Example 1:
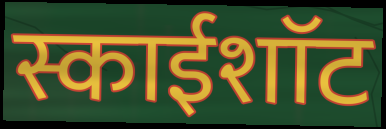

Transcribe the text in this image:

स्काईशॉट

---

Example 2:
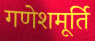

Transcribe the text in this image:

गणेशमूर्ति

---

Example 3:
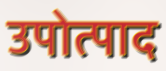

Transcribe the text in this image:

उपोत्पाद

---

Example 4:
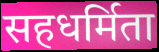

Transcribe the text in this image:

सहधर्मिता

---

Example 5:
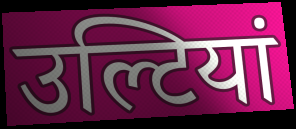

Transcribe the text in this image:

उल्टियां